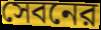
সেবনের